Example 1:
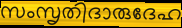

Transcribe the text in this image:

സംസൃതിദാരുദേഹ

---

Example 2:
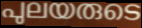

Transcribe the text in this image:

പുലയരുടെ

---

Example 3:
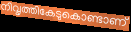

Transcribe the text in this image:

നിവൃത്തികേടുകൊണ്ടാണ്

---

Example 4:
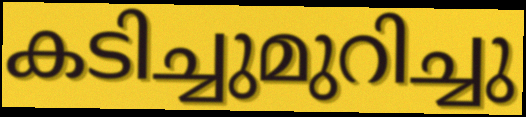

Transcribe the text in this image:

കടിച്ചുമുറിച്ചു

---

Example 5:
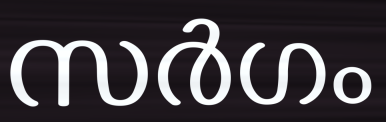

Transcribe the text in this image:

സർഗം